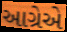
આગ્રેએ